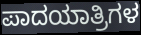
ಪಾದಯಾತ್ರಿಗಳ